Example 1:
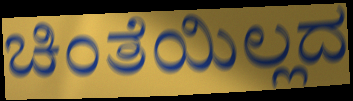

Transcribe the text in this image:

ಚಿಂತೆಯಿಲ್ಲದ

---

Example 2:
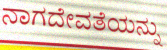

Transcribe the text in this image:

ನಾಗದೇವತೆಯನ್ನು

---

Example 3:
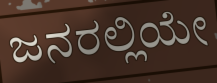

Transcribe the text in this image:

ಜನರಲ್ಲಿಯೇ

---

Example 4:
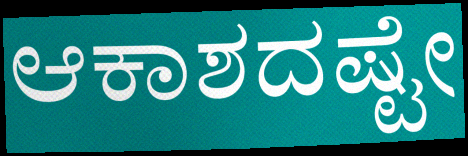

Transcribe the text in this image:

ಆಕಾಶದಷ್ಟೇ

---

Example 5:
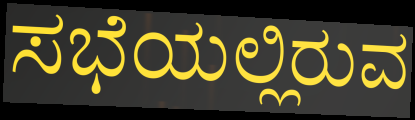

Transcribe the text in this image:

ಸಭೆಯಲ್ಲಿರುವ